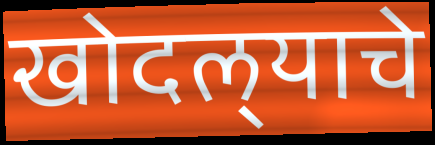
खोदल्याचे